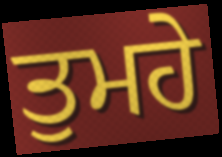
ਤੁਮਹੇ